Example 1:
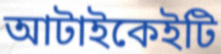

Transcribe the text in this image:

আটাইকেইটি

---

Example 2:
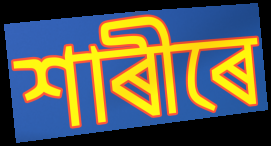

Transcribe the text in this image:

শাৰীৰে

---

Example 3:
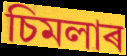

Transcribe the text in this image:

চিমলাৰ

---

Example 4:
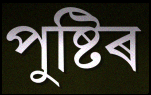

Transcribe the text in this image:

পুষ্টিৰ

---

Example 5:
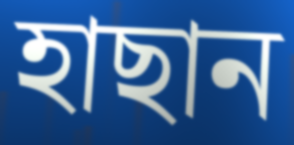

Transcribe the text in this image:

হাছান